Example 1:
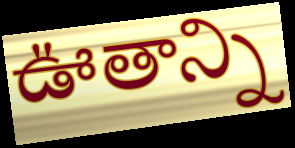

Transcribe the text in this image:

ఊతాన్ని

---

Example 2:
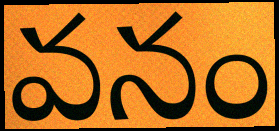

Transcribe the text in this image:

వనం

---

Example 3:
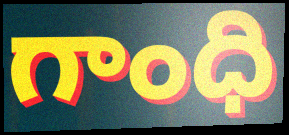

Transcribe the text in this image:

గాంధి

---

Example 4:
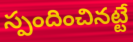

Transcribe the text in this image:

స్పందించినట్టే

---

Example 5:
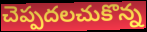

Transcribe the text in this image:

చెప్పదలచుకొన్న